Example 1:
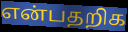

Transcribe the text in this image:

என்பதறிக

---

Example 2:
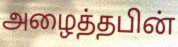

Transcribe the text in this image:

அழைத்தபின்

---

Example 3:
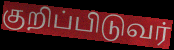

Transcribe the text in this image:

குறிப்பிடுவர்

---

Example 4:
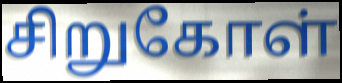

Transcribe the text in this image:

சிறுகோள்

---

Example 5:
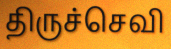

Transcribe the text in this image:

திருச்செவி